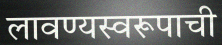
लावण्यस्वरूपाची